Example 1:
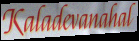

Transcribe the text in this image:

Kaladevanahal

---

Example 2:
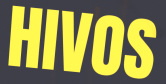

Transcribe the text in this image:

HIVOS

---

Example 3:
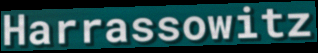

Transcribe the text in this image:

Harrassowitz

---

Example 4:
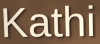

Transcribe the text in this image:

Kathi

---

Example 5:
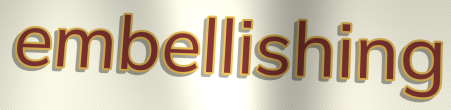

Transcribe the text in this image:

embellishing